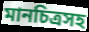
মানচিত্রসহ